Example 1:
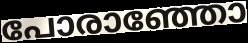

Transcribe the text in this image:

പോരാഞ്ഞോ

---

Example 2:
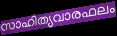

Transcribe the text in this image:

സാഹിത്യവാരഫലം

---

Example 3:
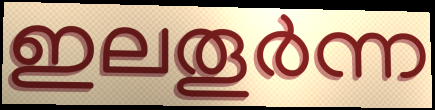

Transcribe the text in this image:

ഇലതൂർന്ന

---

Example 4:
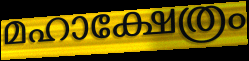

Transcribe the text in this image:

മഹാക്ഷേത്രം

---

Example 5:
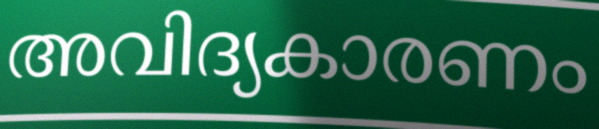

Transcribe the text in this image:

അവിദ്യകാരണം